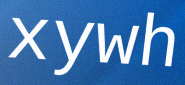
xywh